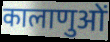
कालाणुओं